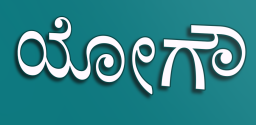
ಯೋಗೌ